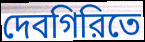
দেবগিরিতে